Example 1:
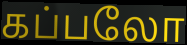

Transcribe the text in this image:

கப்பலோ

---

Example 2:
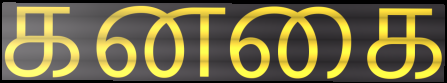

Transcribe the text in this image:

கனகை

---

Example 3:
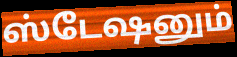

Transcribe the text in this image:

ஸ்டேஷனும்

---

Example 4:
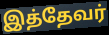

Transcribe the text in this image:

இத்தேவர்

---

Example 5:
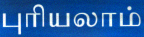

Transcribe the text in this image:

புரியலாம்